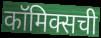
कॉमिक्सची